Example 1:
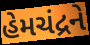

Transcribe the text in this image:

હેમચંદ્રને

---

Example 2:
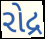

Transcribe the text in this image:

રોદ્ર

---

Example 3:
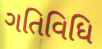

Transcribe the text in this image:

ગતિવિધિ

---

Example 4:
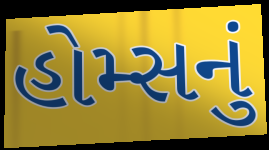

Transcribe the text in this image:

હોમ્સનું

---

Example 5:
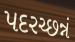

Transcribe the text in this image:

પદરચ્છન્નં